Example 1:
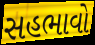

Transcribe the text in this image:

સહભાવો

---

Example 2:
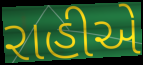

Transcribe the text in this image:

રાહીએ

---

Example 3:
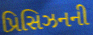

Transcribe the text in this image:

પ્રિસિઝનની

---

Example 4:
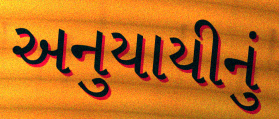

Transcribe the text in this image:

અનુયાયીનું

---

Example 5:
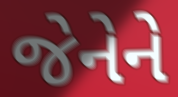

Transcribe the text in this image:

જેનેને